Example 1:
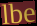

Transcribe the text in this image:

lbe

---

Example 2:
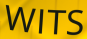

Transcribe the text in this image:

WITS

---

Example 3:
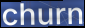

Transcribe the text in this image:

churn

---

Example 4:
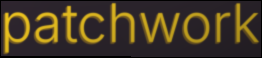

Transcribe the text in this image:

patchwork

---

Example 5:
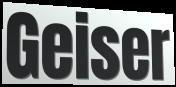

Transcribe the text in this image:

Geiser